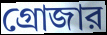
গ্রোজার